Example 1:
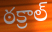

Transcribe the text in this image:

ఠక్రాల్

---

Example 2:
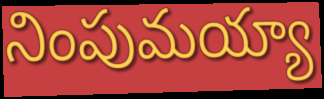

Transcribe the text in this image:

నింపుమయ్యా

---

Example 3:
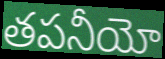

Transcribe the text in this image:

తపనీయో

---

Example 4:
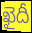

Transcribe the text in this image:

ఖైదీ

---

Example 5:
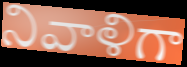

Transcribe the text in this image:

నివాళిగా